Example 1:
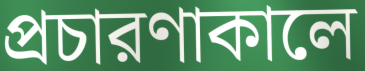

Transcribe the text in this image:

প্রচারণাকালে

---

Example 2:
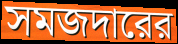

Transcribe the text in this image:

সমজদারের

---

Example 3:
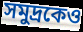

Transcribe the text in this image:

সমুদ্রকেও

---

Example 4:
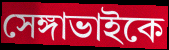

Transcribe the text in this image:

সেঙ্গাভাইকে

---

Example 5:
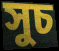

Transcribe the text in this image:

সুচ